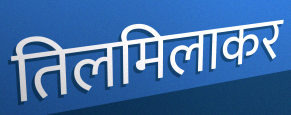
तिलमिलाकर